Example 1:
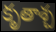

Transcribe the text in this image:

కృతాశ్చ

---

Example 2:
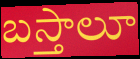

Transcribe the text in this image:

బస్తాలూ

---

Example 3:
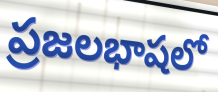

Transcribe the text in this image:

ప్రజలభాషలో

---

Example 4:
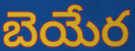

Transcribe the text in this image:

బెయేర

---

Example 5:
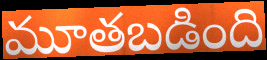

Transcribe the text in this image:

మూతబడింది